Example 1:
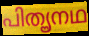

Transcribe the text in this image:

പിതൄനഥ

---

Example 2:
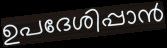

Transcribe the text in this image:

ഉപദേശിപ്പാൻ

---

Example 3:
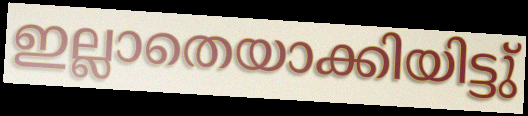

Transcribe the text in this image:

ഇല്ലാതെയാക്കിയിട്ടു്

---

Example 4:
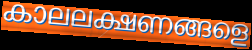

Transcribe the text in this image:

കാലലക്ഷണങ്ങളെ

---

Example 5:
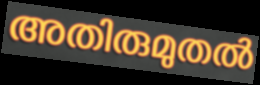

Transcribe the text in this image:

അതിരുമുതൽ